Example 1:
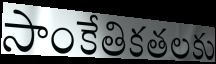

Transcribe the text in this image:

సాంకేతికతలకు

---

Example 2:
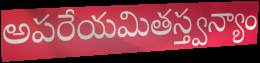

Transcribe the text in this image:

అపరేయమితస్త్వన్యాం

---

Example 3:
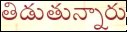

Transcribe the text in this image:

తిడుతున్నారు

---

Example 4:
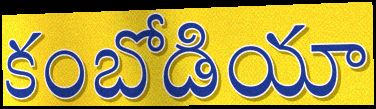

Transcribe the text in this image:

కంబోడియా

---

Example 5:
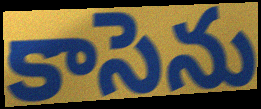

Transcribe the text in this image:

కాసెను